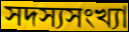
সদস্যসংখ্যা